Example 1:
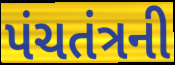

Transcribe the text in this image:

પંચતંત્રની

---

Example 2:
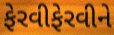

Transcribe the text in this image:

ફેરવીફેરવીને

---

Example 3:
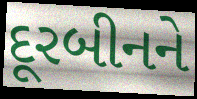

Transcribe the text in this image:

દૂરબીનને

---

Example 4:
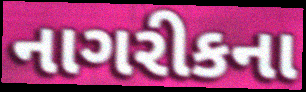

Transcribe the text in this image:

નાગરીકના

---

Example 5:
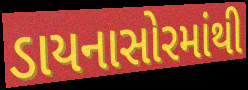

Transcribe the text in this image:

ડાયનાસોરમાંથી